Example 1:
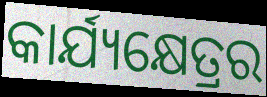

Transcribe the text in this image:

କାର୍ଯ୍ୟକ୍ଷେତ୍ରର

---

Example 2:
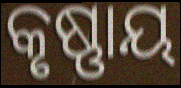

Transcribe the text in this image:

କୃଷ୍ଣାୟ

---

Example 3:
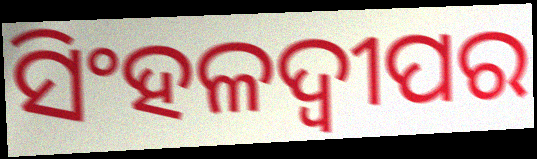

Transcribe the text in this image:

ସିଂହଳଦ୍ୱୀପର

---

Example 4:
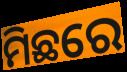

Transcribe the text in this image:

ମିଛରେ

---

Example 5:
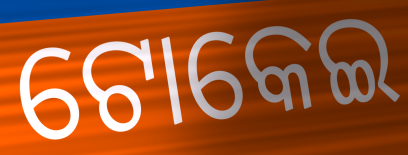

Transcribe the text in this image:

ଟୋକେଇ